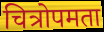
चित्रोपमता